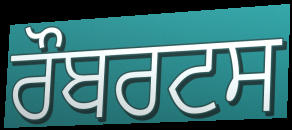
ਰੌਬਰਟਸ